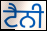
ਟੈਨੀ